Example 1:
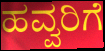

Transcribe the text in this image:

ಹವ್ವರಿಗೆ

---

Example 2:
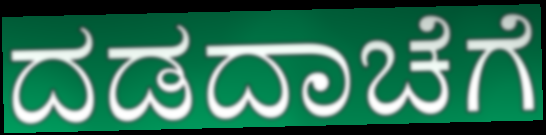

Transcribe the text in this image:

ದಡದಾಚೆಗೆ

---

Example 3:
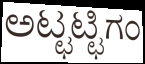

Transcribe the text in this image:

ಅಟ್ಟಟ್ಟಿಗಂ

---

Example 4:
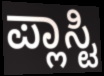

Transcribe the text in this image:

ಪ್ಲಾಸ್ಟಿ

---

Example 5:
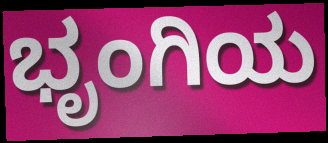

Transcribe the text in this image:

ಭೃಂಗಿಯ